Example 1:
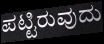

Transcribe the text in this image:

ಪಟ್ಟಿರುವುದು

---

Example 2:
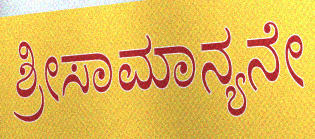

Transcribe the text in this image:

ಶ್ರೀಸಾಮಾನ್ಯನೇ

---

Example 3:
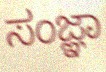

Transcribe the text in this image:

ಸಂಜ್ಞಾ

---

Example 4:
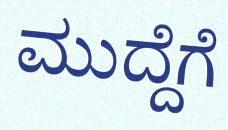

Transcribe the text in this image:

ಮುದ್ದೆಗೆ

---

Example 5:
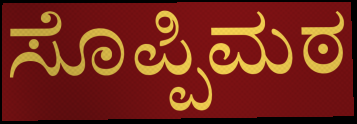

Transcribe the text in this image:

ಸೊಪ್ಪಿಮಠ